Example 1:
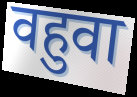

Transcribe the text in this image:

वहुवा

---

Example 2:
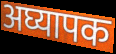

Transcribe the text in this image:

अघ्यापक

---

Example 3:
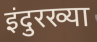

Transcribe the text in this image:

इंदुरख्या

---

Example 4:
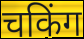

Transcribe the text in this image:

चकिंग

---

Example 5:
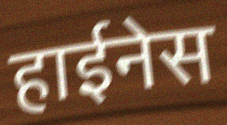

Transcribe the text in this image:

हाईनेस